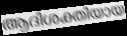
ആദിശക്തിയായ